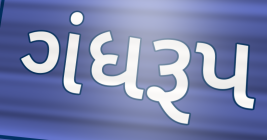
ગંધરૂપ